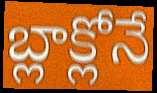
బ్లాక్లోనే